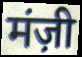
मंज़ी